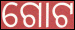
ଗୋଟ